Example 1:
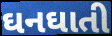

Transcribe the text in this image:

ઘનઘાતી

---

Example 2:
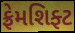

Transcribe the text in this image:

ફ્રેમશિફ્ટ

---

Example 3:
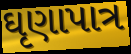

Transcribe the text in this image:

ઘૃણાપાત્ર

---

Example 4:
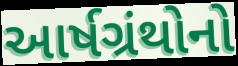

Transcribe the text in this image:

આર્ષગ્રંથોનો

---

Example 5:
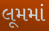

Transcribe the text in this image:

લૂમમાં